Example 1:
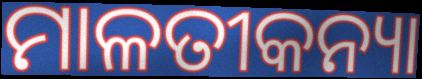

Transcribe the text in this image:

ମାଳତୀକନ୍ୟା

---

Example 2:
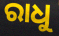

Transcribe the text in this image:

ରାଧୁ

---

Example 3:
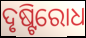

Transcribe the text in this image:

ଦୃଷ୍ଟିରୋଧ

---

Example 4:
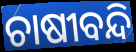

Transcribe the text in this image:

ଚାଷୀବନ୍ଦି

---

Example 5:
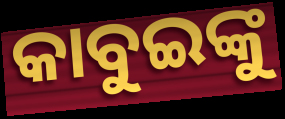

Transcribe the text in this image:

କାବୁଇଙ୍କୁ